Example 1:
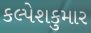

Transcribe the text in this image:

કલ્પેશકુમાર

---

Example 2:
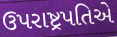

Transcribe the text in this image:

ઉપરાષ્ટ્રપતિએ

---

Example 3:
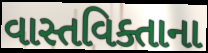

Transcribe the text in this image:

વાસ્તવિક્તાના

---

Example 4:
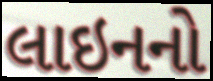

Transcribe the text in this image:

લાઇનનો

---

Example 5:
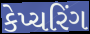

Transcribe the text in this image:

કેપ્ચરિંગ